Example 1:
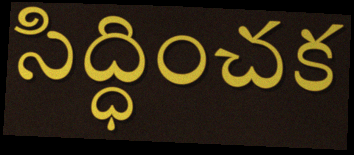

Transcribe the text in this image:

సిద్ధించక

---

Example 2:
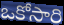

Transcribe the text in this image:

ఒకోసారి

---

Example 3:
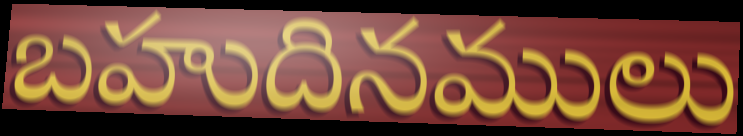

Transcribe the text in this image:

బహుదినములు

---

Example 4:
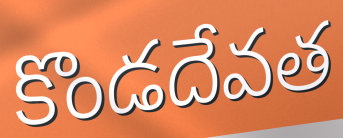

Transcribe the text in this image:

కొండదేవత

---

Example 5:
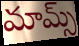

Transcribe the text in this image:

మామ్స్